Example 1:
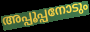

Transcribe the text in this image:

അപ്പൂപ്പനോടും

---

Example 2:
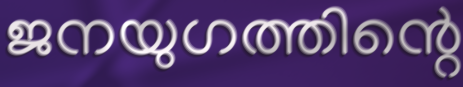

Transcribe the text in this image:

ജനയുഗത്തിന്റെ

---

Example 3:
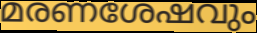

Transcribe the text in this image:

മരണശേഷവും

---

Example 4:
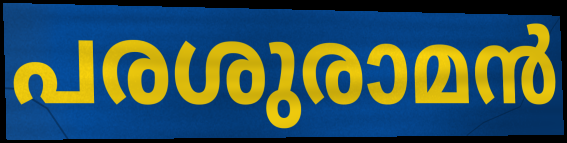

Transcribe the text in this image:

പരശുരാമൻ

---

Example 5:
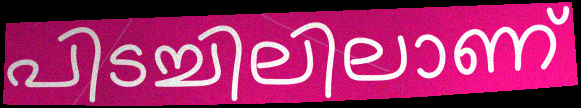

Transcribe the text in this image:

പിടച്ചിലിലാണ്